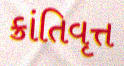
ક્રાંતિવૃત્ત